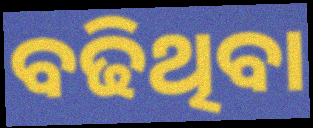
ବଢିଥିବା